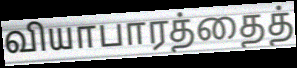
வியாபாரத்தைத்